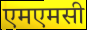
एमएमसी